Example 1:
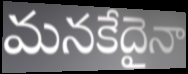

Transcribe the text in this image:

మనకేదైనా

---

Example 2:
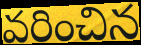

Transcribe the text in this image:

వరించిన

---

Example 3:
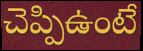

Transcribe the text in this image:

చెప్పిఉంటే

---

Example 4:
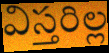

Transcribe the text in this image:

విస్తరిల్ల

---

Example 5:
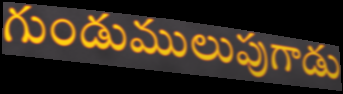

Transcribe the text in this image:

గుండుములుపుగాడు